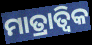
ମାତ୍ରାତ୍ଵିକ